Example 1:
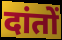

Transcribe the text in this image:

दांतों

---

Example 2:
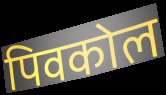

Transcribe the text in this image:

पिवकोल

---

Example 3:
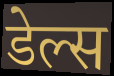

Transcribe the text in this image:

डेल्स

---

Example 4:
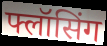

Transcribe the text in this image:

फ्लॉसिंग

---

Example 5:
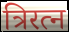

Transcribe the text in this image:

त्रिरत्न